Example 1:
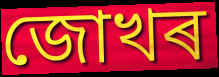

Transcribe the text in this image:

জোখৰ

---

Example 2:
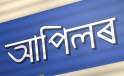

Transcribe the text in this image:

আপিলৰ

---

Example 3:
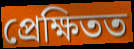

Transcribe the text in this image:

প্ৰেক্ষিতত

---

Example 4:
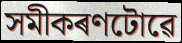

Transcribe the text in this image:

সমীকৰণটোৱে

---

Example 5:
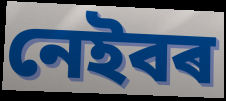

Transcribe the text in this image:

নেইবৰ